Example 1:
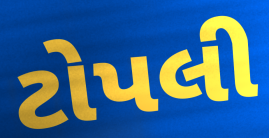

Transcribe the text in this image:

ટોપલી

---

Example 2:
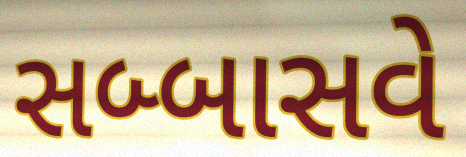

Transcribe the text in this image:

સબ્બાસવે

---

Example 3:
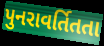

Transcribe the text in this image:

પુનરાવર્તિતતા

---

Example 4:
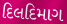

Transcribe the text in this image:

દિલદિમાગ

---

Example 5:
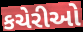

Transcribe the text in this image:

કચેરીઓ